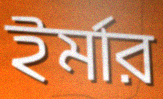
ইর্মার